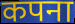
कपना